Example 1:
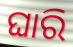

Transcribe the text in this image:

ଘାରି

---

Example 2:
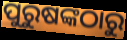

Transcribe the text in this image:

ପୁରୁଷଙ୍କଠାରୁ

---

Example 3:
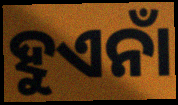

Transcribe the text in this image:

ହୁଏନାଁ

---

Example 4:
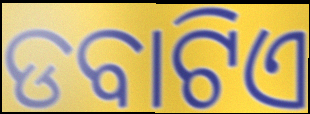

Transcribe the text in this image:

ଡବାଟିଏ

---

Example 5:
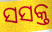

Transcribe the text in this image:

ସସକ୍ତ